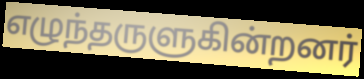
எழுந்தருளுகின்றனர்